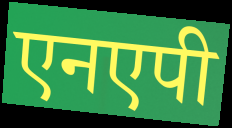
एनएपी